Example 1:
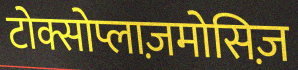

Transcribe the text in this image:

टोक्सोप्लाज़मोसिज़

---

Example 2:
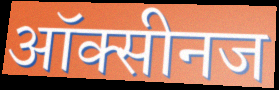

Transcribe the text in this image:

ऑक्सीनज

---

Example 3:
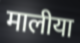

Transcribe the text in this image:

मालीया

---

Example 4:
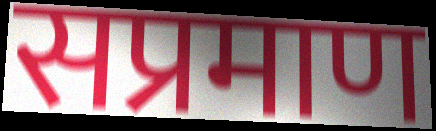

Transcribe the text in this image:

सप्रमाण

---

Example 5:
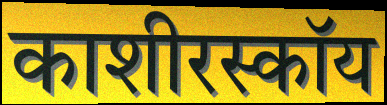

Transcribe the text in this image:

काशीरस्कॉय